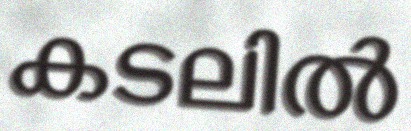
കടലിൽ